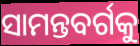
ସାମନ୍ତବର୍ଗକୁ